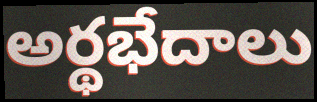
అర్థభేదాలు